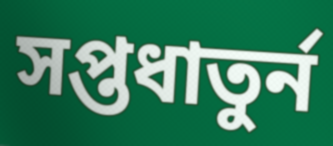
সপ্তধাতুর্ন